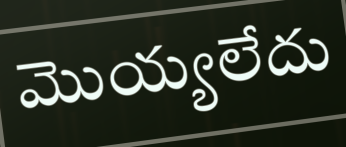
మొయ్యలేదు